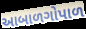
આબાળગોપાળ